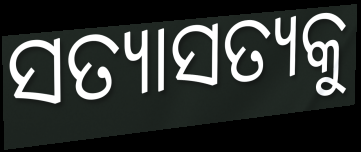
ସତ୍ୟାସତ୍ୟକୁ